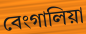
বেংগালিয়া